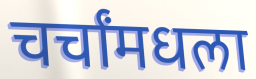
चर्चांमधला